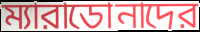
ম্যারাডোনাদের